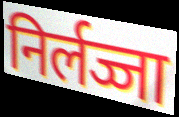
निर्लज्जा